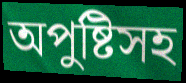
অপুষ্টিসহ